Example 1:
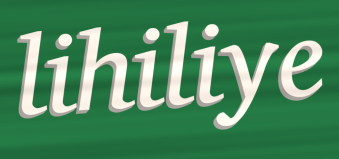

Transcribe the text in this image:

lihiliye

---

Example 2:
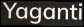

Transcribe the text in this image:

Yaganti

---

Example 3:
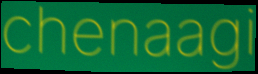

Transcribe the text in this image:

chenaagi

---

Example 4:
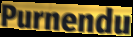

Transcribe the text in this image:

Purnendu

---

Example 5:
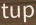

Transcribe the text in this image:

tup